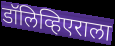
डॉलिव्हिएराला